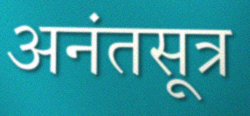
अनंतसूत्र